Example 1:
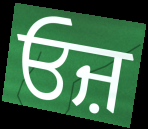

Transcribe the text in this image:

ਓਜ਼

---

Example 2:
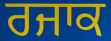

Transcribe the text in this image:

ਰਜਾਕ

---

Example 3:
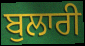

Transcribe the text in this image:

ਬੁਲਾਰੀ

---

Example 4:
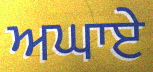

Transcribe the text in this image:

ਅਘਾਏ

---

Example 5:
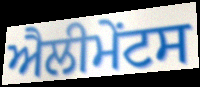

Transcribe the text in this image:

ਐਲੀਮੇੰਟਸ